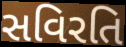
સવિરતિ